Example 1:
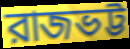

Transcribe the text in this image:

রাজভট্ট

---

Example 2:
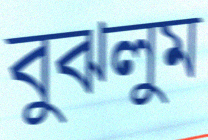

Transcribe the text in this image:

বুঝলুম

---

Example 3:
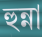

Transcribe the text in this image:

হুন্না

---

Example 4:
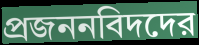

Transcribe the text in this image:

প্রজননবিদদের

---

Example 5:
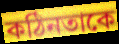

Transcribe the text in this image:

কঠিনতাকে